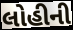
લોહીની